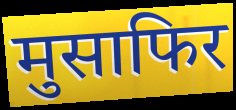
मुसाफिर